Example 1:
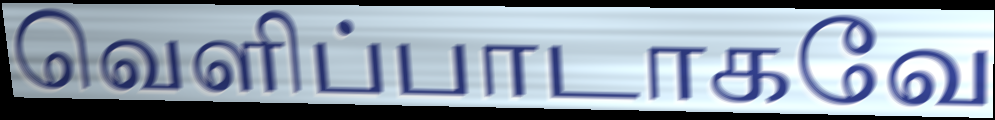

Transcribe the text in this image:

வெளிப்பாடாகவே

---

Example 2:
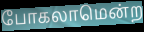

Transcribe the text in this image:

போகலாமென்ற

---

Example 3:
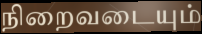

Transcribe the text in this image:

நிறைவடையும்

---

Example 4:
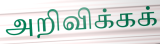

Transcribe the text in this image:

அறிவிக்கக்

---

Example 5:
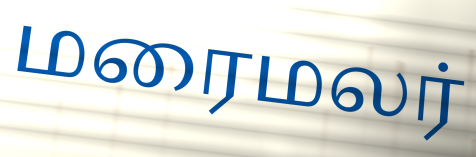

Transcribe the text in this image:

மரைமலர்